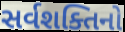
સર્વશક્તિનો